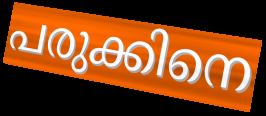
പരുക്കിനെ